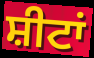
ਸ਼ੀਟਾਂ